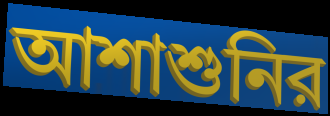
আশাশুনির